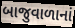
બાજુવાળાનાં